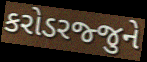
કરોડરજ્જુને